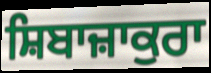
ਸ਼ਿਬਾਜ਼ਾਕੁਰਾ